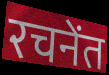
रचनेंत